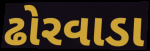
ઢોરવાડા